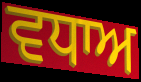
ਵਧਾਅ